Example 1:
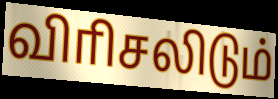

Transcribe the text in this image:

விரிசலிடும்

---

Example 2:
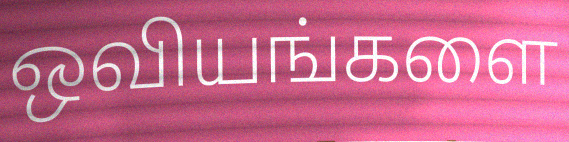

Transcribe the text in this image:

ஒவியங்களை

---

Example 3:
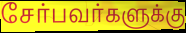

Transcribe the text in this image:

சேர்பவர்களுக்கு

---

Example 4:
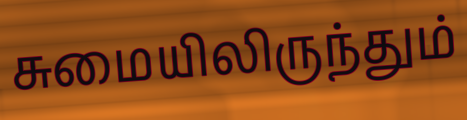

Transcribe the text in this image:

சுமையிலிருந்தும்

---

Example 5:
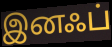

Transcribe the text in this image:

இனஃப்